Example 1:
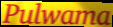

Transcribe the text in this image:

Pulwama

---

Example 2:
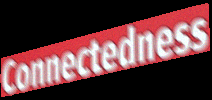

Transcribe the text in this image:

Connectedness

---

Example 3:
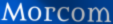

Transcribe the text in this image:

Morcom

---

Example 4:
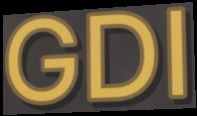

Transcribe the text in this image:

GDI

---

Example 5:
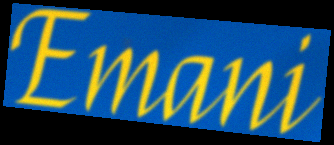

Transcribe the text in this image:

Emani